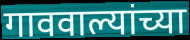
गाववाल्यांच्या